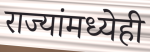
राज्यांमध्येही